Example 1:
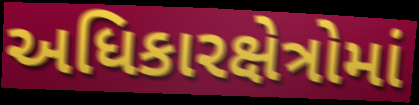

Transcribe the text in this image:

અધિકારક્ષેત્રોમાં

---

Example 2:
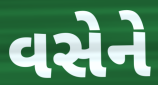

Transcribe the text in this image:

વસેને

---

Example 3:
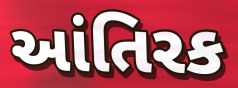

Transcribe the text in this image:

આંતિરક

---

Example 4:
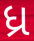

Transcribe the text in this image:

ધ્ર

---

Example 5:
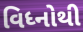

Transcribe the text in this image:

વિધ્નોથી